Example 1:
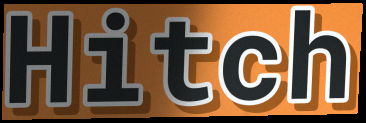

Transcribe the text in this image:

Hitch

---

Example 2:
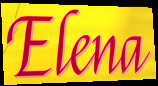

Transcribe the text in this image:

Elena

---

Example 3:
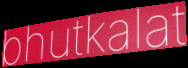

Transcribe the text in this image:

bhutkalat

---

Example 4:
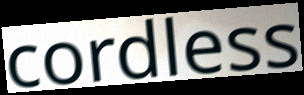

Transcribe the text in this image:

cordless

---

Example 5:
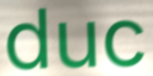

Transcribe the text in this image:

duc